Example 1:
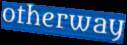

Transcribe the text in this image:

otherway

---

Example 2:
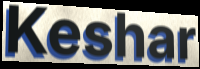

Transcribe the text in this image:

Keshar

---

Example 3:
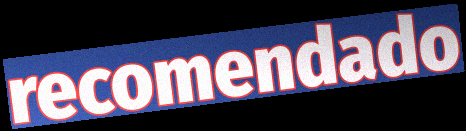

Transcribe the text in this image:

recomendado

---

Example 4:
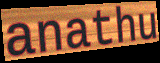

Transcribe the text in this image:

anathu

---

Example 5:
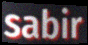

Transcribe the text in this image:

sabir